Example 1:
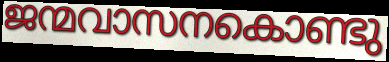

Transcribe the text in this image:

ജന്മവാസനകൊണ്ടു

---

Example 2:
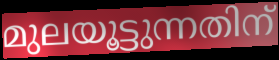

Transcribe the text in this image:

മുലയൂട്ടുന്നതിന്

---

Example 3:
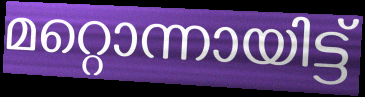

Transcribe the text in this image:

മറ്റൊന്നായിട്ട്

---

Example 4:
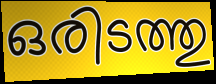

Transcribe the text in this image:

ഒരിടത്തു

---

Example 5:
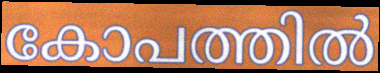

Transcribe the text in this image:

കോപത്തിൽ